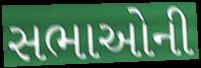
સભાઓની